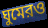
ঘুমেরও